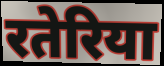
रतेरिया